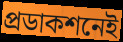
প্রডাকশনেই